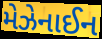
મેઝેનાઈન